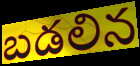
బడలిన